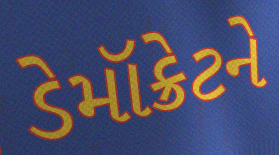
ડેમૉક્રેટને